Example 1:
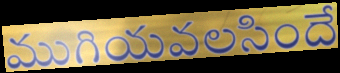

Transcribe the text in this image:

ముగియవలసిందే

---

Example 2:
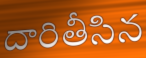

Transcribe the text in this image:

దారితీసిన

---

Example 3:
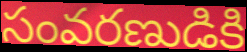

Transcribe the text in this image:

సంవరణుడికి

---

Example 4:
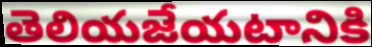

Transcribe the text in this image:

తెలియజేయటానికి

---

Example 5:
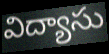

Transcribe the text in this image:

విద్యాసు